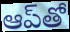
ఆప్‌తో